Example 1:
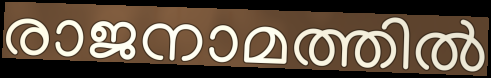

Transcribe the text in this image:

രാജനാമത്തിൽ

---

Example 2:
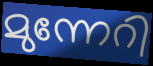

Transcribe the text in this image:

മുന്നേറി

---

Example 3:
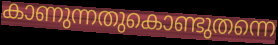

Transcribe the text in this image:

കാണുന്നതുകൊണ്ടുതന്നെ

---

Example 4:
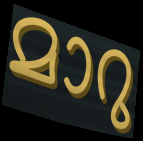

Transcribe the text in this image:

മാറു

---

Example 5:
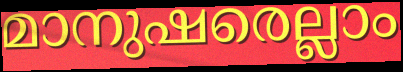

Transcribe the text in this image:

മാനുഷരെല്ലാം